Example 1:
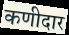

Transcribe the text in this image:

कणीदार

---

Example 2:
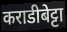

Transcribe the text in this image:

कराडीबेट्टा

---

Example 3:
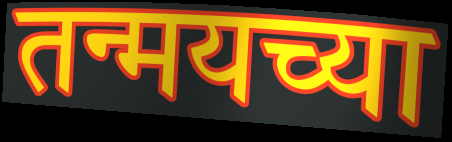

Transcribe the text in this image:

तन्मयच्या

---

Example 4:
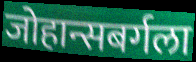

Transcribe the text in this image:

जोहान्सबर्गला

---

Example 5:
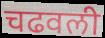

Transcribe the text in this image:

चढवली